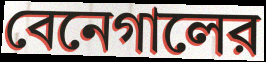
বেনেগালের